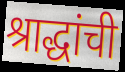
श्राद्धांची